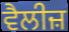
ਵੈਲੀਜ਼